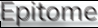
Epitome